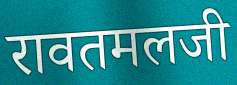
रावतमलजी